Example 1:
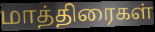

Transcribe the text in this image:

மாத்திரைகள்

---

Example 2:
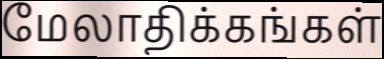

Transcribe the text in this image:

மேலாதிக்கங்கள்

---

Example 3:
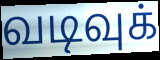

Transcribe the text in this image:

வடிவுக்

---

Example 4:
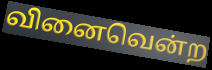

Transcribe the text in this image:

வினைவென்ற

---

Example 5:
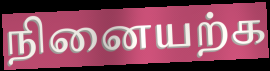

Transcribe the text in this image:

நினையற்க